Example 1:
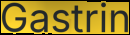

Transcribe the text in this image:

Gastrin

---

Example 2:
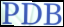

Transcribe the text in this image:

PDB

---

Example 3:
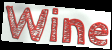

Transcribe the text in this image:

Wine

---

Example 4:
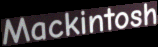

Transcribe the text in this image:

Mackintosh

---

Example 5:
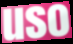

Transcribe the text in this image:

uso